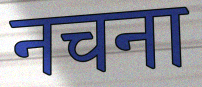
नचना